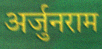
अर्जुनराम